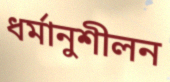
ধৰ্মানুশীলন